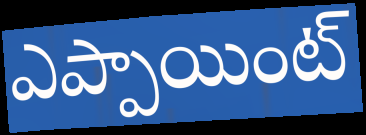
ఎప్పాయింట్